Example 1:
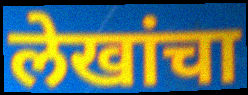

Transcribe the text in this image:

लेखांचा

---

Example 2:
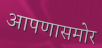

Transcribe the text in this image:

आपणासमोर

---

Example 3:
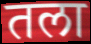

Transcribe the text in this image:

तला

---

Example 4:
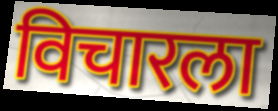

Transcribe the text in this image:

विचारला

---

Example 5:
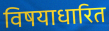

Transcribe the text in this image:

विषयाधारित